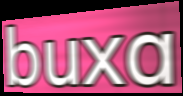
buxa